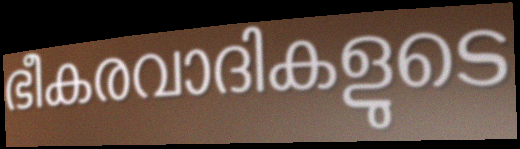
ഭീകരവാദികളുടെ